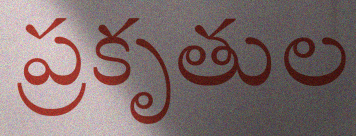
ప్రకృతుల